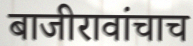
बाजीरावांचाच